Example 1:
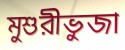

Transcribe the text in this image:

মুশুরীভুজা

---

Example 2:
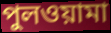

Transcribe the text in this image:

পুলওয়ামা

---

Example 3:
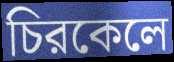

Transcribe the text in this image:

চিরকেলে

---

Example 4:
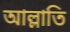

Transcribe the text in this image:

আল্লাতি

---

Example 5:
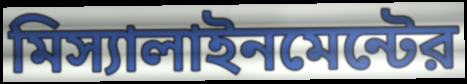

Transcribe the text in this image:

মিস্যালাইনমেন্টের